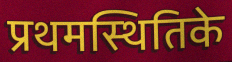
प्रथमस्थितिके